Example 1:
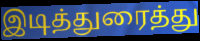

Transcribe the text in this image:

இடித்துரைத்து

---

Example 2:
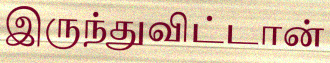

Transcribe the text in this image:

இருந்துவிட்டான்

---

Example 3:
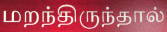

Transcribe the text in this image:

மறந்திருந்தால்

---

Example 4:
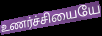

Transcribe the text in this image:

உணர்ச்சியையே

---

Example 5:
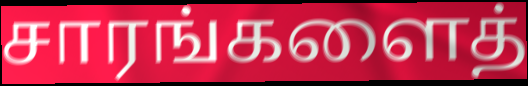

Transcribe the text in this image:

சாரங்களைத்